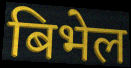
बिभेल